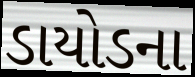
ડાયોડના